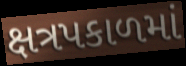
ક્ષત્રપકાળમાં